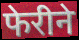
फेरीने